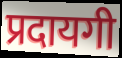
प्रदायगी